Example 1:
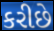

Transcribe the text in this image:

કરીછે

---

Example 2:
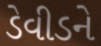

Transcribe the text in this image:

ડેવીડને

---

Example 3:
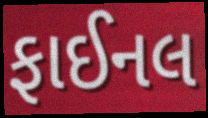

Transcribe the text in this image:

ફાઈનલ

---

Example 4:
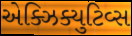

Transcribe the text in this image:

એક્ઝિક્યુટિવ્સ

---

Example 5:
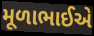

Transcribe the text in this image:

મૂળાભાઈએ